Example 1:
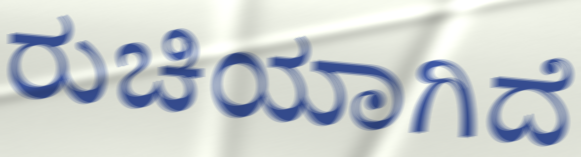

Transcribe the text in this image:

ರುಚಿಯಾಗಿದೆ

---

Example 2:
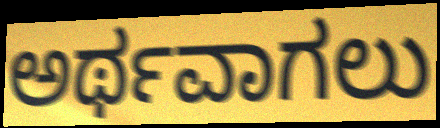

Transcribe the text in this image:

ಅರ್ಥವಾಗಲು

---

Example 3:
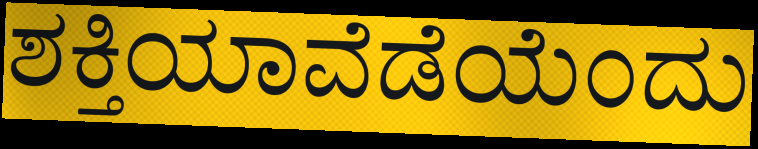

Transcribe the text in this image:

ಶಕ್ತಿಯಾವೆಡೆಯೆಂದು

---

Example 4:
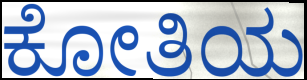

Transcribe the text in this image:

ಕೋತಿಯ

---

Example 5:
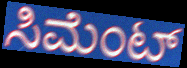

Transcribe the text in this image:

ಸಿಮೆಂಟ್